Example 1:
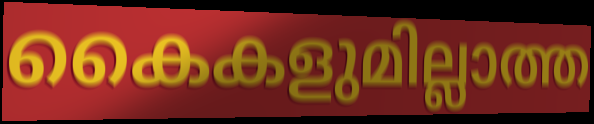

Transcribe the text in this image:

കൈകളുമില്ലാത്ത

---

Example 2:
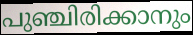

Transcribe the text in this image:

പുഞ്ചിരിക്കാനും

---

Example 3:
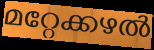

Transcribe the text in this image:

മറ്റേക്കഴൽ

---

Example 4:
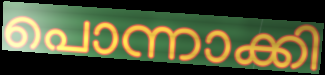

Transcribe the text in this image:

പൊന്നാക്കി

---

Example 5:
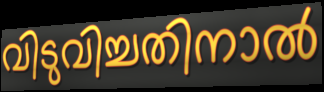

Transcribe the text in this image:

വിടുവിച്ചതിനാൽ